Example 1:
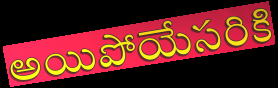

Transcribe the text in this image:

అయిపోయేసరికి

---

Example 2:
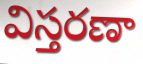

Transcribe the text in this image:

విస్తరణా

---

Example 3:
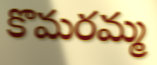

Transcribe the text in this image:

కొమరమ్మ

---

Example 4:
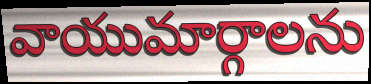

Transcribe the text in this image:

వాయుమార్గాలను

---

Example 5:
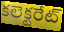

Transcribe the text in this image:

కలెక్టరేట్